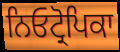
ਨਿਓਟ੍ਰੋਪਿਕਾ